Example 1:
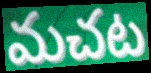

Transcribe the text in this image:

మచట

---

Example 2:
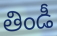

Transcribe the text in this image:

తిండీ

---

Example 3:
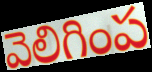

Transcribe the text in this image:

వెలిగింప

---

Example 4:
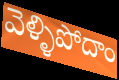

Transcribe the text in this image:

వెళ్ళిపోదాం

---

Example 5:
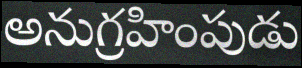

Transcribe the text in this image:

అనుగ్రహింపుడు